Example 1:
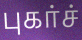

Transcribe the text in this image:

புகர்ச்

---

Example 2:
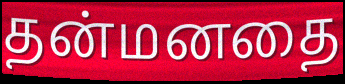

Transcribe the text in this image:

தன்மனதை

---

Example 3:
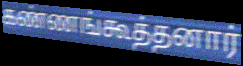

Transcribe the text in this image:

கண்ணங்கூத்தனார்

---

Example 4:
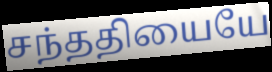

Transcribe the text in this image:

சந்ததியையே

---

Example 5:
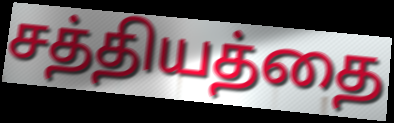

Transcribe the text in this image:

சத்தியத்தை